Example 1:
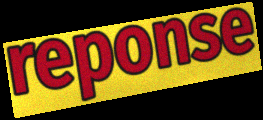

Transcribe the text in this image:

reponse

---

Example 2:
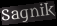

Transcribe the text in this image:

Sagnik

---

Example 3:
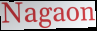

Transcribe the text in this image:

Nagaon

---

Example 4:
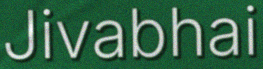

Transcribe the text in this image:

Jivabhai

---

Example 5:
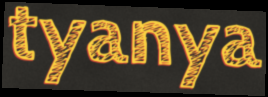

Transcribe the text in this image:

tyanya